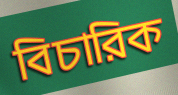
বিচারিক